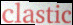
clastic